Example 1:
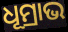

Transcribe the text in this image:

ଧୂମ୍ରାଭ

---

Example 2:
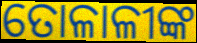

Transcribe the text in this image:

ତୋଳାଳୀଙ୍କ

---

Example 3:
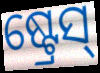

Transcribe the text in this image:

ଷ୍ଟ୍ରେସ୍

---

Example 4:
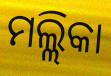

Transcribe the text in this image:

ମଲ୍ଲିକା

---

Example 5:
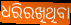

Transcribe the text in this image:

ଧରିରଖିଥିବା